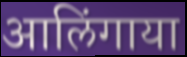
आलिंगाया